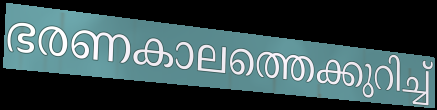
ഭരണകാലത്തെക്കുറിച്ച്